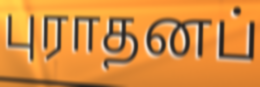
புராதனப்